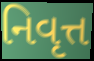
નિવૃત્ત